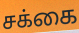
சக்கை